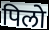
पिलो